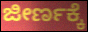
ಜೀರ್ಣಕ್ಕೆ